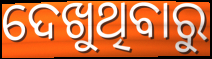
ଦେଖୁଥିବାରୁ